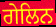
ਗੇਲਿਨ